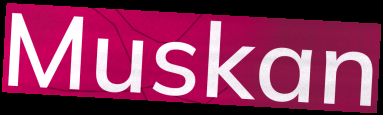
Muskan